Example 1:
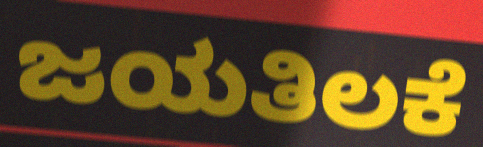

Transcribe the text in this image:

ಜಯತಿಲಕೆ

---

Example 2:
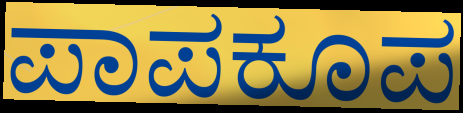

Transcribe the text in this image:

ಪಾಪಕೂಪ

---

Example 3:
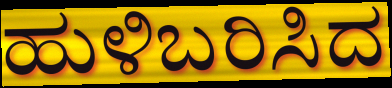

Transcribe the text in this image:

ಹುಳಿಬರಿಸಿದ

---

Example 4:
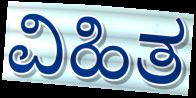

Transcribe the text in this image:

ವಿಹಿತ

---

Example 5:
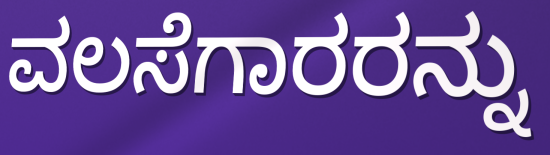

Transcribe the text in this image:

ವಲಸೆಗಾರರನ್ನು